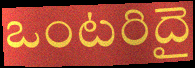
ఒంటరిదై